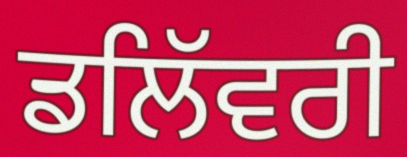
ਡਲਿੱਵਰੀ